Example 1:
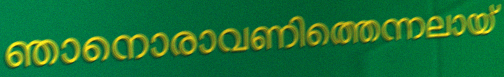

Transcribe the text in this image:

ഞാനൊരാവണിത്തെന്നലായ്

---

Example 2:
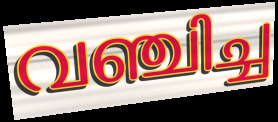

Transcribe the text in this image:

വഞ്ചിച്ച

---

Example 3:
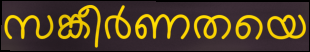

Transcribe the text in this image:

സങ്കീർണതയെ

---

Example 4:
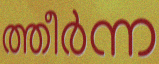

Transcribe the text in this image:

ത്തീർന്ന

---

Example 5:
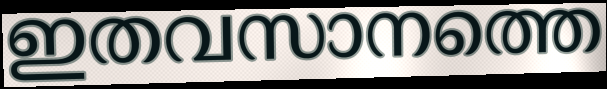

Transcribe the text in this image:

ഇതവസാനത്തെ